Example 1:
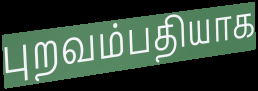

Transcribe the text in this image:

புறவம்பதியாக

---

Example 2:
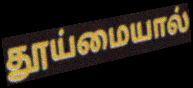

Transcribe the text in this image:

தூய்மையால்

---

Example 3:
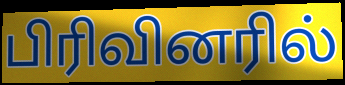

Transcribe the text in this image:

பிரிவினரில்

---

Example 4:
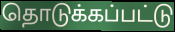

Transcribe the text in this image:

தொடுக்கப்பட்டு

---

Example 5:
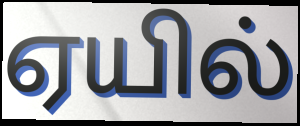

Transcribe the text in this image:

ஏயில்